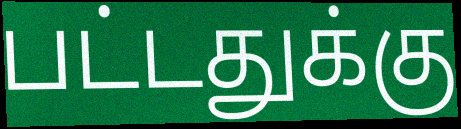
பட்டதுக்கு